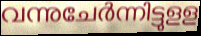
വന്നുചേർന്നിട്ടുളള